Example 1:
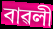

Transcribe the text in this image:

বাৱলী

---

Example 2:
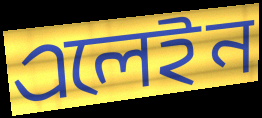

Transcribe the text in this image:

এলেইন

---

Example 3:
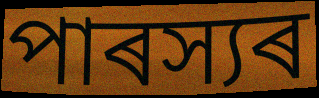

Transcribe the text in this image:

পাৰস্যৰ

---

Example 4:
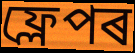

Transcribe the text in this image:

ফ্লেপৰ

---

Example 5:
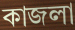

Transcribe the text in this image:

কাজলা